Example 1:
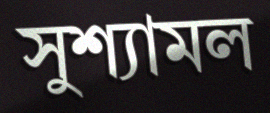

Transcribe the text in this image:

সুশ্যামল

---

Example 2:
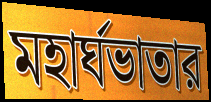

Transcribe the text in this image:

মহার্ঘভাতার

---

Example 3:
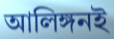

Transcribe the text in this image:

আলিঙ্গনই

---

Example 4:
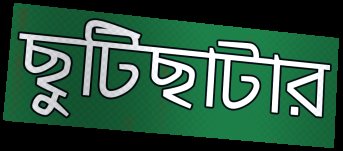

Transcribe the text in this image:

ছুটিছাটার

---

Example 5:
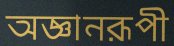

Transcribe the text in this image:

অজ্ঞানরূপী